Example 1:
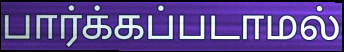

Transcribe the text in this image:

பார்க்கப்படாமல்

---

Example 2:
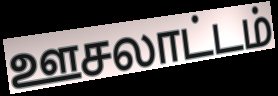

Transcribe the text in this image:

ஊசலாட்டம்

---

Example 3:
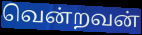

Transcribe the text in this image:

வென்றவன்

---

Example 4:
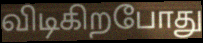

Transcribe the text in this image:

விடிகிறபோது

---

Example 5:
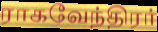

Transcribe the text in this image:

ராகவேந்திரர்